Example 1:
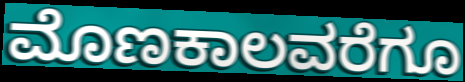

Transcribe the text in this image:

ಮೊಣಕಾಲವರೆಗೂ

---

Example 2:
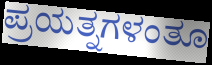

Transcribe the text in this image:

ಪ್ರಯತ್ನಗಳಂತೂ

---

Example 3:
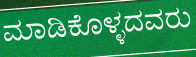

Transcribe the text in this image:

ಮಾಡಿಕೊಳ್ಳದವರು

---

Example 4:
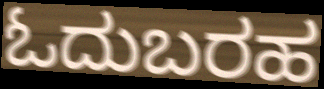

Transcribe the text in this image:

ಓದುಬರಹ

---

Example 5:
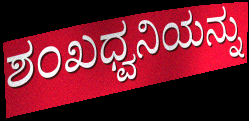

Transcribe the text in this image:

ಶಂಖಧ್ವನಿಯನ್ನು